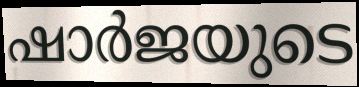
ഷാർജയുടെ